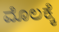
ಮೊಲಕ್ಕೆ